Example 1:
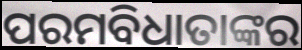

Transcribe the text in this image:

ପରମବିଧାତାଙ୍କର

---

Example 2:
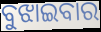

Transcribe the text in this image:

ବୁଝାଇବାର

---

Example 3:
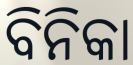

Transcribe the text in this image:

ବିନିକା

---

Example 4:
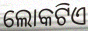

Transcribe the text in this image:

ଲୋକଟିଏ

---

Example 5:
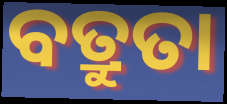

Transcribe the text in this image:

ବତ୍ରୁତା